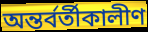
অন্তর্বর্তীকালীণ